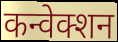
कन्वेक्शन